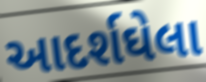
આદર્શઘેલા